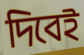
দিবেই